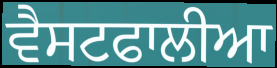
ਵੈਸਟਫਾਲੀਆ